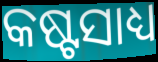
କଷ୍ଟସାଧ୍ଯ